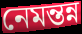
নেমন্তন্ন